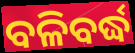
ବଳିବର୍ଦ୍ଧ